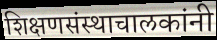
शिक्षणसंस्थाचालकांनी